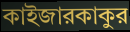
কাইজারকাকুর